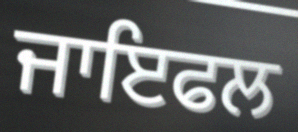
ਜਾਇਫਲ